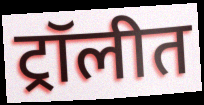
ट्रॉलीत